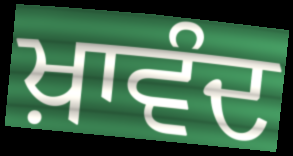
ਖ਼ਾਵੰਦ